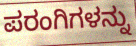
ಪರಂಗಿಗಳನ್ನು